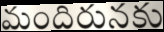
మందిరునకు